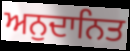
ਅਨੁਦਾਨਿਤ